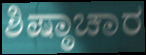
ಶಿಷ್ಠಾಚಾರ